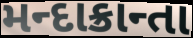
મન્દાક્રાન્તા